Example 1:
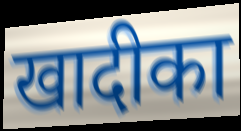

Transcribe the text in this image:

खादीका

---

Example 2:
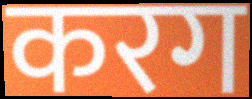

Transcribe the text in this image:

करग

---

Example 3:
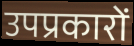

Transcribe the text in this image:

उपप्रकारों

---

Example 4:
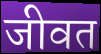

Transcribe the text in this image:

जीवत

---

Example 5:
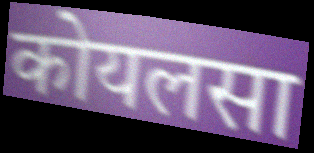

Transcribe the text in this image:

कोयलसा